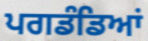
ਪਗਡੰਡਿਆਂ